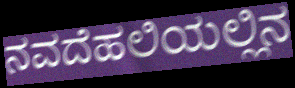
ನವದೆಹಲಿಯಲ್ಲಿನ